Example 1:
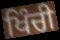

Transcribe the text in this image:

ਖਿੰਚੀ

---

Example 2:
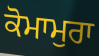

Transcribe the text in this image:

ਕੋਮਾਮੁਰਾ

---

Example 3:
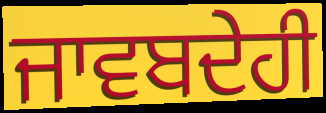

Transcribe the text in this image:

ਜਾਵਬਦੇਹੀ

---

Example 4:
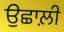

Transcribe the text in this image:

ਉਛਾਲ਼ੀ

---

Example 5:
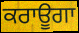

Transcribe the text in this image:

ਕਰਾਊਗਾ